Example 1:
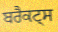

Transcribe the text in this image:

ਬਰੈਕਟ੍ਸ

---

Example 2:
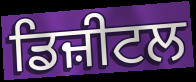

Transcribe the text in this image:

ਡਿਜ਼ੀਟਲ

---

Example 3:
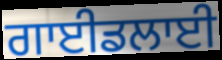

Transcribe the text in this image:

ਗਾਈਡਲਾਈ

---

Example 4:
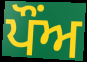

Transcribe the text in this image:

ਪੌਂਅ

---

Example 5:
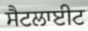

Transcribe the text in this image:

ਸੈਟਲਾਈਟ